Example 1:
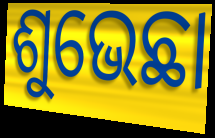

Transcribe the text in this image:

ଶୁଭେଛା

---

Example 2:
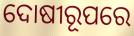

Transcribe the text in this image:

ଦୋଷୀରୂପରେ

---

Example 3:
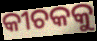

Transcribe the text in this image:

କୀଚକକୁ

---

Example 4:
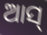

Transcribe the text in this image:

ଆସ୍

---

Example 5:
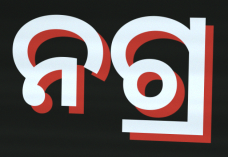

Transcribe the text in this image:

ନଗ୍ର